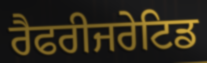
ਰੈਫਰੀਜਰੇਟਿਡ